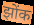
झोंक